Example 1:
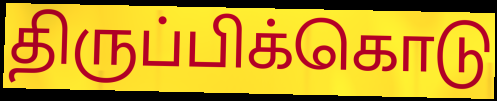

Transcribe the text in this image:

திருப்பிக்கொடு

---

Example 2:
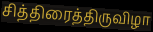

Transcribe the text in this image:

சித்திரைத்திருவிழா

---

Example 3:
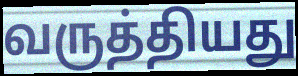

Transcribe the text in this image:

வருத்தியது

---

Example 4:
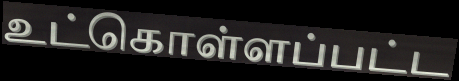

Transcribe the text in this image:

உட்கொள்ளப்பட்ட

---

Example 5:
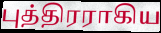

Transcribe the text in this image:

புத்திரராகிய